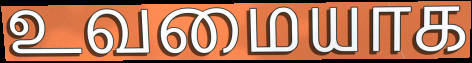
உவமையாக